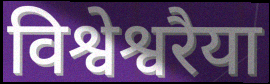
विश्वेश्वरैया